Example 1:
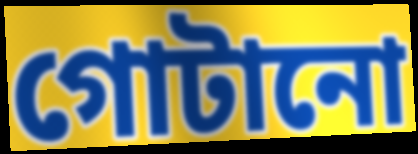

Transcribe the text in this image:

গোটানো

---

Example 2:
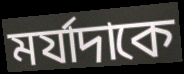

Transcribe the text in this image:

মর্যাদাকে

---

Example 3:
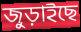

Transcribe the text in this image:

জুড়াইছে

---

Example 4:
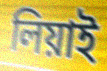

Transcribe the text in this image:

লিয়াই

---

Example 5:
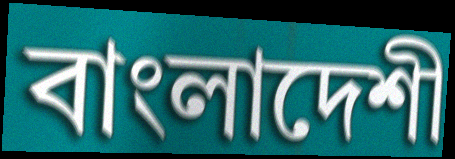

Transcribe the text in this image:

বাংলাদেশী